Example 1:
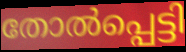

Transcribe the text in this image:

തോൽപ്പെട്ടി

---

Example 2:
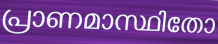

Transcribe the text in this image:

പ്രാണമാസ്ഥിതോ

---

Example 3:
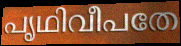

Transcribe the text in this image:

പൃഥിവീപതേ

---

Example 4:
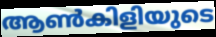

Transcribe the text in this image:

ആൺകിളിയുടെ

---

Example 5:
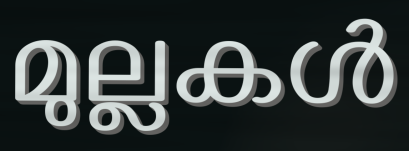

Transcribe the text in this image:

മുല്ലകൾ